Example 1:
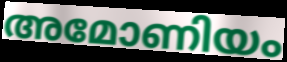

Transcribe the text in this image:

അമോണിയം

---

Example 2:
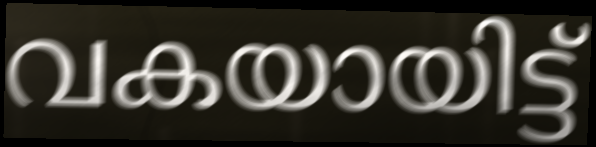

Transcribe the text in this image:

വകയായിട്ട്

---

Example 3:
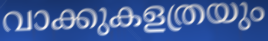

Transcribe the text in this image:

വാക്കുകളത്രയും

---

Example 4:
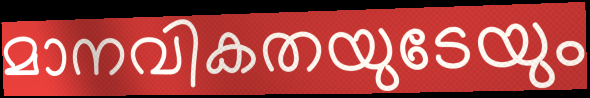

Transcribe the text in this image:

മാനവികതയുടേയും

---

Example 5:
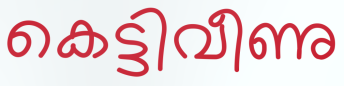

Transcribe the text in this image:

കെട്ടിവീണു